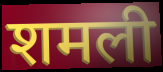
शमली